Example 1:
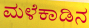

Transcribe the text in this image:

ಮಳೆಕಾಡಿನ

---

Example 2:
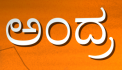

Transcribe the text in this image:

ಅಂದ್ರ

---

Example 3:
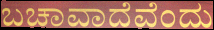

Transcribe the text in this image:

ಬಚಾವಾದೆವೆಂದು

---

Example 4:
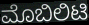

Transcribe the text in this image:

ಮೊಬಿಲಿಟಿ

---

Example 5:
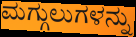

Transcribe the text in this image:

ಮಗ್ಗುಲುಗಳನ್ನು